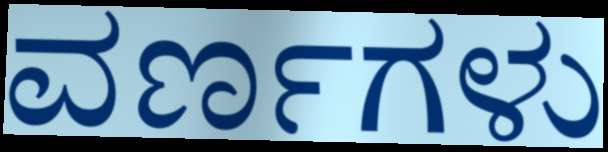
ವರ್ಣಗಳು